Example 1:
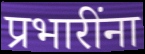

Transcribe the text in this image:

प्रभारींना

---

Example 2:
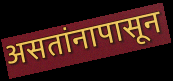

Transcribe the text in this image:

असतांनापासून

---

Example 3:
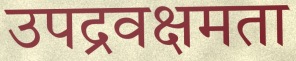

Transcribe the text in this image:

उपद्रवक्षमता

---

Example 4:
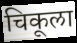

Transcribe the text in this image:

चिकूला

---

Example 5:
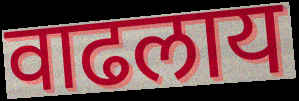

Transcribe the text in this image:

वाढलाय